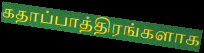
கதாப்பாத்திரங்களாக